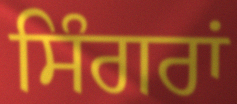
ਸਿੰਗਰਾਂ